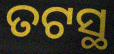
ତଟସ୍ଥ